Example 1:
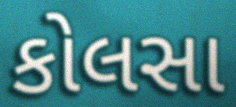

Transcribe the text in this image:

કોલસા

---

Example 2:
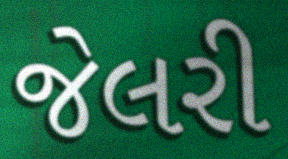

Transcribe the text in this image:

જેલરી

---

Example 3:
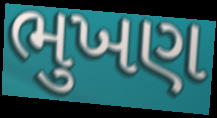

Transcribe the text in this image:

ભુખણ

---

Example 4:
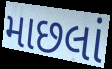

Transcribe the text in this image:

માછલાં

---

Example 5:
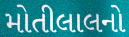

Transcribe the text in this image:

મોતીલાલનો